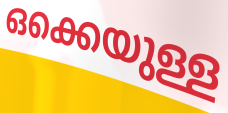
ഒക്കെയുള്ള